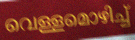
വെള്ളമൊഴിച്ച്